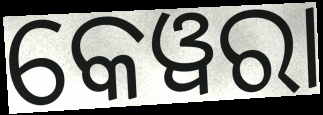
କେୱରା